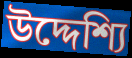
উদ্দেশ্যি